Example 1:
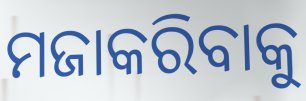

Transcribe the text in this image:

ମଜାକରିବାକୁ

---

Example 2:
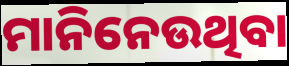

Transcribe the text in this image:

ମାନିନେଉଥିବା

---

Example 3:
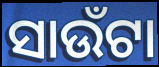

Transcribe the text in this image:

ସାଉଁଟା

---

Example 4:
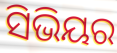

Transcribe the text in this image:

ସିଭିୟର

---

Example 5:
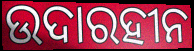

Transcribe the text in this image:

ଉଦାରହୀନ